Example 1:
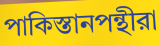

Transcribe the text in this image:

পাকিস্তানপন্থীরা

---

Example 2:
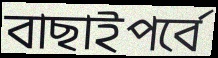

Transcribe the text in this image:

বাছাইপর্বে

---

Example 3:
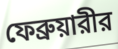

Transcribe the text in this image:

ফেব্রুয়ারীর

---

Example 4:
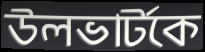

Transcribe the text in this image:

উলভার্টকে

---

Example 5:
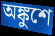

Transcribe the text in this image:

অঙ্কুশে